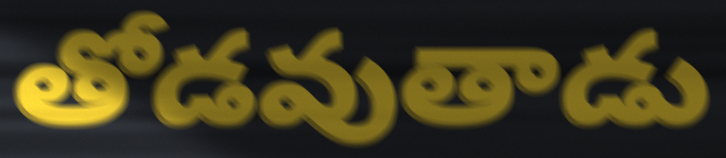
తోడవుతాడు